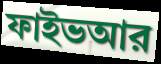
ফাইভআর